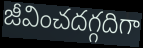
జీవించదగ్గదిగా